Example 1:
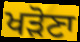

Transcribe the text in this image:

ਖੜੋਣਾ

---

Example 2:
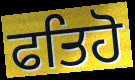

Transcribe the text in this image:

ਫਤਿਹੋ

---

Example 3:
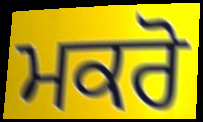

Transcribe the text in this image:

ਮਕਰੋ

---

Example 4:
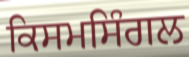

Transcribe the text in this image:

ਕਿਸਮਸਿੰਗਲ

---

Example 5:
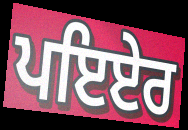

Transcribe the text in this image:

ਪਇਏਰ